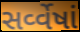
સર્વ્વેષાં